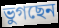
ভুগছেন